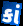
કાં